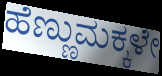
ಹೆಣ್ಣುಮಕ್ಕಳೇ